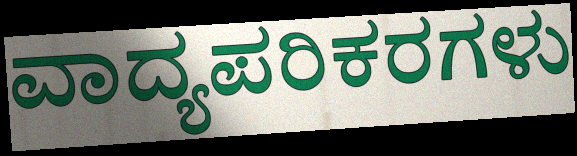
ವಾದ್ಯಪರಿಕರಗಳು